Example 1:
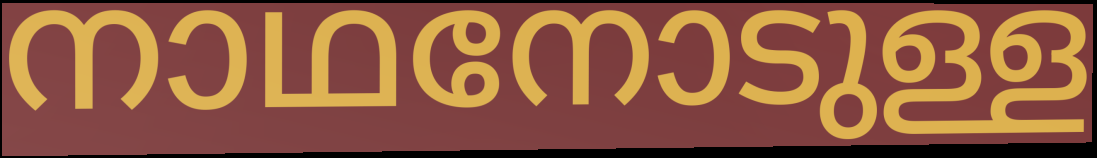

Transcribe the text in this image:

നാഥനോടുള്ള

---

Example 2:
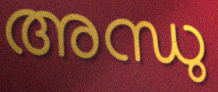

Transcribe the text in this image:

അന്ധു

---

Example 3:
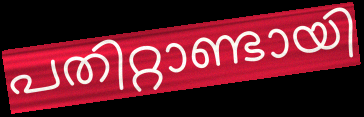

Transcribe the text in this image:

പതിറ്റാണ്ടായി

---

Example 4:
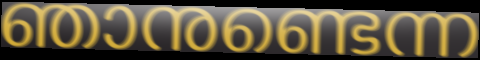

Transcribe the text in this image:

ഞാനുണ്ടെന്ന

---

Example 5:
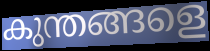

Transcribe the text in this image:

കുന്തങ്ങളെ